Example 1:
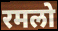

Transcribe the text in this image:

रमलो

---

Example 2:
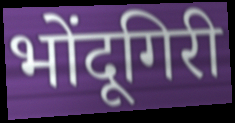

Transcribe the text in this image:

भोंदूगिरी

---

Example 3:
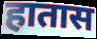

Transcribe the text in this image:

हातास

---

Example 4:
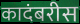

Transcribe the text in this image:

कादंबरीस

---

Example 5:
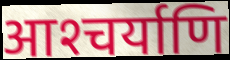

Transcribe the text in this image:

आश्चर्याणि